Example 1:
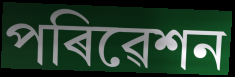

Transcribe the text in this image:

পৰিৱেশন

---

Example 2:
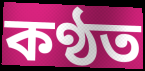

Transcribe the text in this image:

কণ্ঠত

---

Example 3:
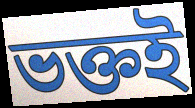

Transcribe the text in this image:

ভক্তই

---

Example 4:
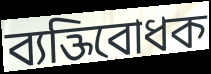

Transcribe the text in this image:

ব্যক্তিবোধক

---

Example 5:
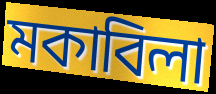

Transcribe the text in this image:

মকাবিলা